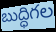
బుద్ధిగల